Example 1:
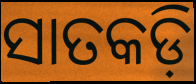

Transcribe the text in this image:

ସାତକଡ଼ି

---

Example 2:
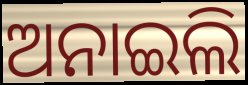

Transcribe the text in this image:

ଅନାଇଲି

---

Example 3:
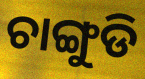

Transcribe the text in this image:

ଚାଙ୍ଗୁଡି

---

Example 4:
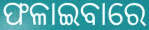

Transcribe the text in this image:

ଫଳାଇବାରେ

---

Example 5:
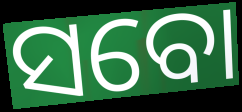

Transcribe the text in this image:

ସବୋ